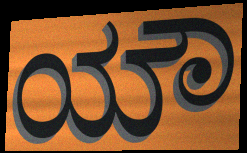
ಯೌ